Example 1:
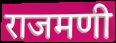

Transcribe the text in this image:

राजमणी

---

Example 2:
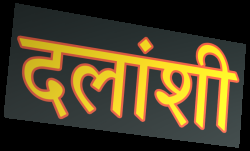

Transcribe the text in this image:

दलांशी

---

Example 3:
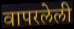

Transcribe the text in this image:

वापरलेली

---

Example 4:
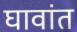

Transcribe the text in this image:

घावांत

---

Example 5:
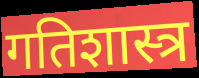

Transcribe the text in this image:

गतिशास्त्र